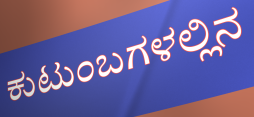
ಕುಟುಂಬಗಳಲ್ಲಿನ